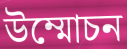
উম্মোচন